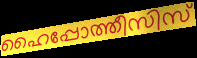
ഹൈപ്പോത്തീസിസ്